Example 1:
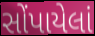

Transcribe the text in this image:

સોંપાયેલાં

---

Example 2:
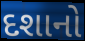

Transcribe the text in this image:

દશાનો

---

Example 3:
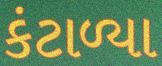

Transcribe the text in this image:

કંટાળ્યા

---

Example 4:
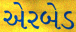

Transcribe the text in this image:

એરબેડ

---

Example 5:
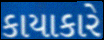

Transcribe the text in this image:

કાયાકારે